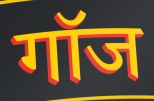
गॉज